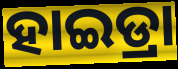
ହାଇଡ୍ରା